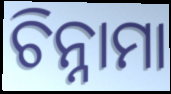
ଚିନ୍ନାମା